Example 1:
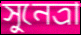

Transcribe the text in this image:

সুনেত্রা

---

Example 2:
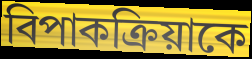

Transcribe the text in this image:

বিপাকক্রিয়াকে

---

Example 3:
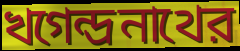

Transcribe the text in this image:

খগেন্দ্রনাথের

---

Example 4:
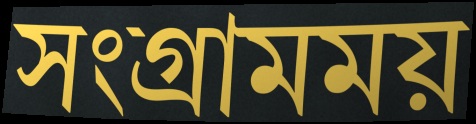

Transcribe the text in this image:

সংগ্রামময়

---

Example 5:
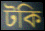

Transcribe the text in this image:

টকি